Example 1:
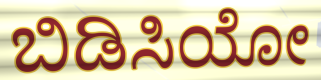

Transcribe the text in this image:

ಬಿಡಿಸಿಯೋ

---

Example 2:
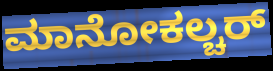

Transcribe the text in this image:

ಮಾನೋಕಲ್ಚರ್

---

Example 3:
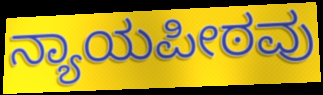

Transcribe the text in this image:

ನ್ಯಾಯಪೀಠವು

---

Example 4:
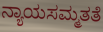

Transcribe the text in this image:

ನ್ಯಾಯಸಮ್ಮತತೆ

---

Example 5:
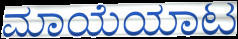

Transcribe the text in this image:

ಮಾಯೆಯಾಟ